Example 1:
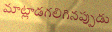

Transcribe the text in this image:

మాట్లాడగలిగినప్పుడు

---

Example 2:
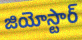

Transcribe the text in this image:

జియోస్టార్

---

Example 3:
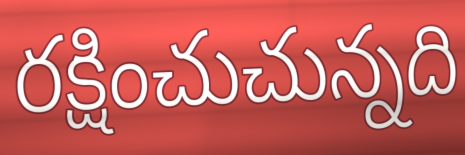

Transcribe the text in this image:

రక్షించుచున్నది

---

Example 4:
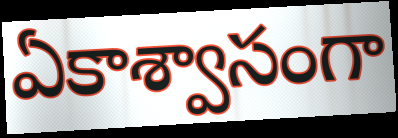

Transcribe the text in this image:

ఏకాశ్వాసంగా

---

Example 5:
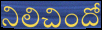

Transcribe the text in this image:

నిలిచిందో